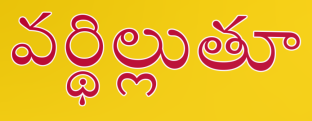
వర్థిల్లుతూ